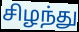
சிழந்து